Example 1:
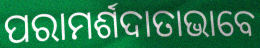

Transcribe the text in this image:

ପରାମର୍ଶଦାତାଭାବେ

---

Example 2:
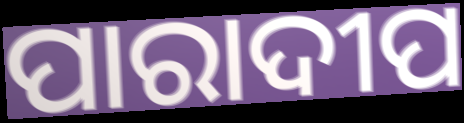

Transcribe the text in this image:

ପାରାଦୀପ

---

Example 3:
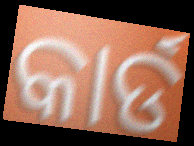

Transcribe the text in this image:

କାର୍ଡ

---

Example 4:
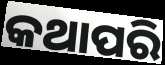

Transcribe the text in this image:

କଥାପରି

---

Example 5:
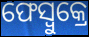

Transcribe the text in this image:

ଫେସ୍ବୁକ୍ରେ